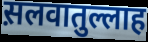
स़लवातुल्लाह